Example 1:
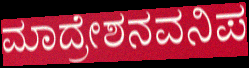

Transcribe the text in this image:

ಮಾದ್ರೇಶನವನಿಪ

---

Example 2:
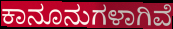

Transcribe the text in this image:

ಕಾನೂನುಗಳಾಗಿವೆ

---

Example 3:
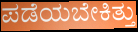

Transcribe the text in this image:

ಪಡೆಯಬೇಕಿತ್ತು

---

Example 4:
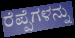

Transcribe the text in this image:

ರೆಪ್ಪೆಗಳನ್ನು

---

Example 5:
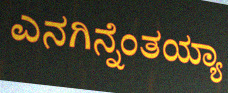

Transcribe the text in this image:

ಎನಗಿನ್ನೆಂತಯ್ಯಾ